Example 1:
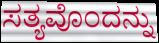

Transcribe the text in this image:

ಸತ್ಯವೊಂದನ್ನು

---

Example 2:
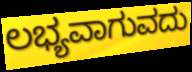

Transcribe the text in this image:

ಲಭ್ಯವಾಗುವದು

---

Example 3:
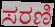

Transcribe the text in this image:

ಸರಣಿ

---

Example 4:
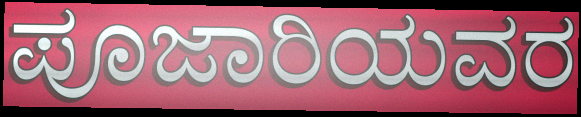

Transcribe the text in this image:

ಪೂಜಾರಿಯವರ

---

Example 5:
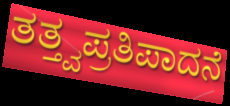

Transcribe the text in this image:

ತತ್ತ್ವಪ್ರತಿಪಾದನೆ